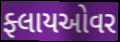
ફ્લાયઓવર